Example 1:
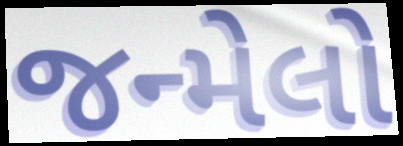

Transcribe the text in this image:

જન્મેલો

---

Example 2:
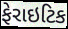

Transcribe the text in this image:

ફેરાઇટિક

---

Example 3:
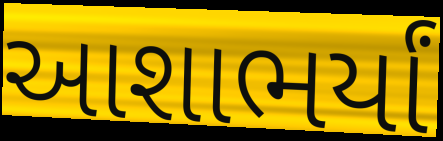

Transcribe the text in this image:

આશાભર્યાં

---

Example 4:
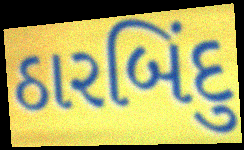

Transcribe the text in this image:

ઠારબિંદુ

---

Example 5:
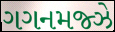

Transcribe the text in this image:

ગગનમજ્ઝે